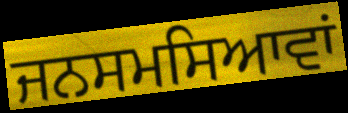
ਜਨਸਮਸਿਆਵਾਂ